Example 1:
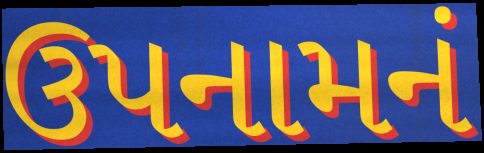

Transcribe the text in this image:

ઉપનામનં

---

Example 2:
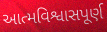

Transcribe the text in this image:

આત્મવિશ્વાસપૂર્ણ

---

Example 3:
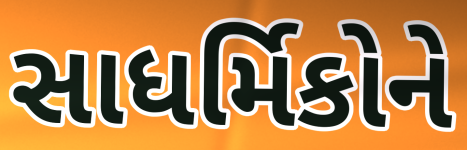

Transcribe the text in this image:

સાધર્મિકોને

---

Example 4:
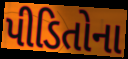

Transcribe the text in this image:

પીડિતોના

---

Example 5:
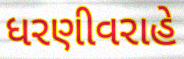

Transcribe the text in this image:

ધરણીવરાહે